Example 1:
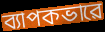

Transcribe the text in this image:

ব্যাপকভাৱে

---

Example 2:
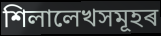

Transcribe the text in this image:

শিলালেখসমূহৰ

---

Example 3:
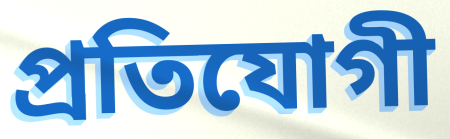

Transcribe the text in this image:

প্ৰতিযোগী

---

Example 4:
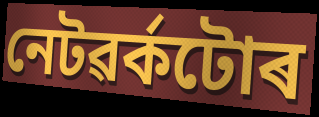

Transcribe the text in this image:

নেটৱৰ্কটোৰ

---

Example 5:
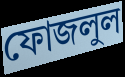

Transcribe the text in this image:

ফোজলুল